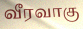
வீரவாகு